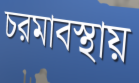
চরমাবস্থায়